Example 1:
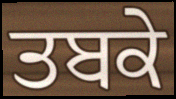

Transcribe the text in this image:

ਤਬਕੇ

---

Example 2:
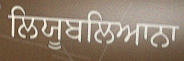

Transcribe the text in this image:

ਲਿਯੂਬਲਿਆਨਾ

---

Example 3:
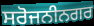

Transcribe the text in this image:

ਸਰੋਜਨੀਨਗਰ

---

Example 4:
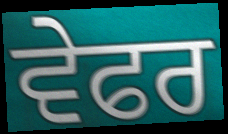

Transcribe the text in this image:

ਵੇਫਰ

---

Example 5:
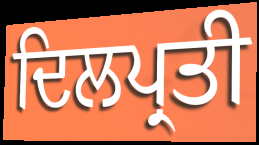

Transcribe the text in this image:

ਦਿਲਪ੍ਰਤੀ